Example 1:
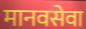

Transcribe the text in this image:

मानवसेवा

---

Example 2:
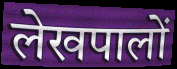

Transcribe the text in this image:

लेखपालों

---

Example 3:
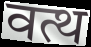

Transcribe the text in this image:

वत्थ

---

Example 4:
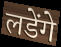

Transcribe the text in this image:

लडेंगे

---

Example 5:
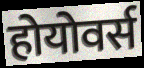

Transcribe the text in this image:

होयोवर्स